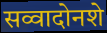
सव्वादोनशे